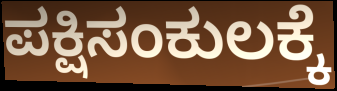
ಪಕ್ಷಿಸಂಕುಲಕ್ಕೆ